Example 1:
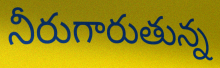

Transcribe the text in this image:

నీరుగారుతున్న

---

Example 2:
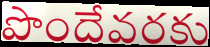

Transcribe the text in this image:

పొందేవరకు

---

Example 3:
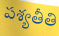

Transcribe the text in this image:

పశ్యతీతి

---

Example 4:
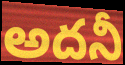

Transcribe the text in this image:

అదనీ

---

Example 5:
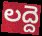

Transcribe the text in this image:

లద్దె